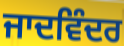
ਜਾਦਵਿੰਦਰ